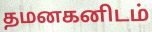
தமனகனிடம்